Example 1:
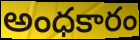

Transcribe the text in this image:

అంధకారం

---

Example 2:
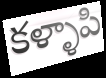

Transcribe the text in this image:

కళ్ళాపి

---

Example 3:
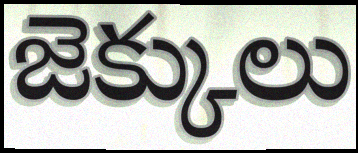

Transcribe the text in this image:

జెక్కులు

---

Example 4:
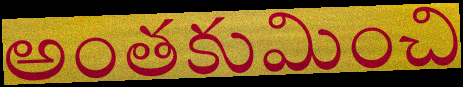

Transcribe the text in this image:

అంతకుమించి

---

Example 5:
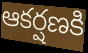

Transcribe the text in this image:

ఆకర్షణకి